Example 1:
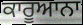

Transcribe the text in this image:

ਕਾਰੂਆਨਾ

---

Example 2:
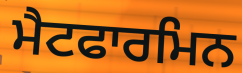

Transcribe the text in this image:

ਮੈਟਫਾਰਮਿਨ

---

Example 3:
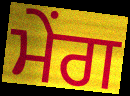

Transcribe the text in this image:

ਮੇਂਗ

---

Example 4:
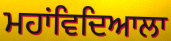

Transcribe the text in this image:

ਮਹਾਂਵਿਦਿਆਲਾ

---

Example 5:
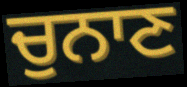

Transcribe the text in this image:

ਚੁਨਾਣ